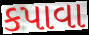
કપાવા